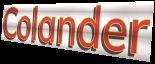
Colander